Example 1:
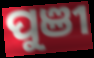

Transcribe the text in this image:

ପୁଞୀ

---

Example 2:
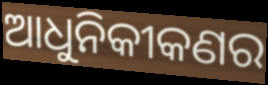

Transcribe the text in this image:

ଆଧୁନିକୀକଣର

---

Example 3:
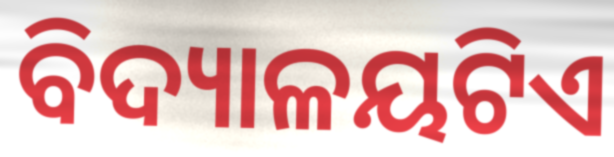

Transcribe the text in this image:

ବିଦ୍ୟାଳୟଟିଏ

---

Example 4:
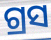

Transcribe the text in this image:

ଗ୍ରସ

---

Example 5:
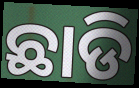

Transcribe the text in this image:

ଛାଡି